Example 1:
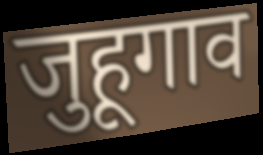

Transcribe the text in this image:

जुहूगाव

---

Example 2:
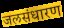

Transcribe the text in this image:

जलसंधारण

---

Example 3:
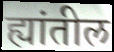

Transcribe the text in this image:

ह्यांतील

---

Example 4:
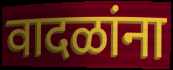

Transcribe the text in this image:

वादळांना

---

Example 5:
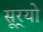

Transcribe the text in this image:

सूर्यो